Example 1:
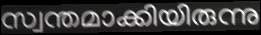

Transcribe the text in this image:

സ്വന്തമാക്കിയിരുന്നു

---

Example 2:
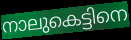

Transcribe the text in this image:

നാലുകെട്ടിനെ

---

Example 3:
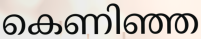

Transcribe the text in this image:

കെണിഞ്ഞ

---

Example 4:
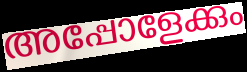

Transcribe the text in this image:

അപ്പോളേക്കും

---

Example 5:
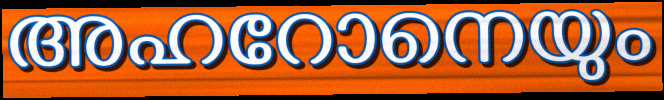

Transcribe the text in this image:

അഹറോനെയും